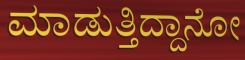
ಮಾಡುತ್ತಿದ್ದಾನೋ